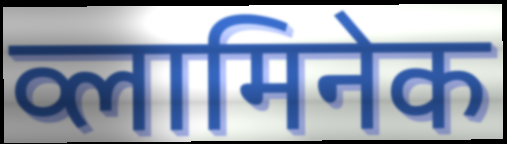
व्लामिनेक